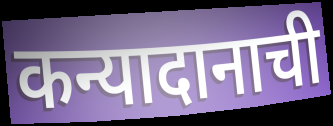
कन्यादानाची